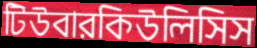
টিউবারকিউলিসিস